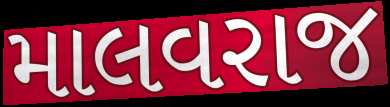
માલવરાજ